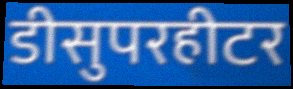
डीसुपरहीटर